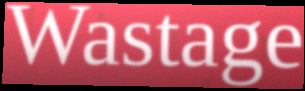
Wastage